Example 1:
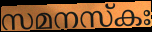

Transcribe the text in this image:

സമനസ്കഃ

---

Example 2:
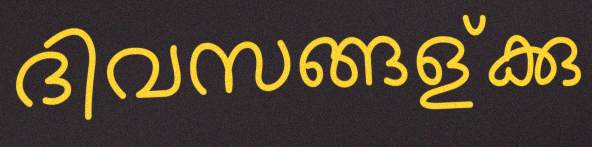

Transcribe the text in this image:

ദിവസങ്ങള്ക്കു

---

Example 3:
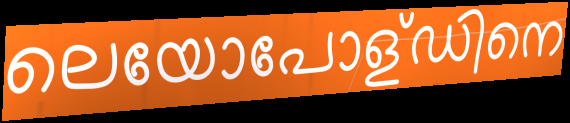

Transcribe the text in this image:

ലെയോപോള്ഡിനെ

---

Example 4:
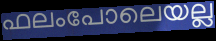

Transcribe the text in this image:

ഫലംപോലെയല്ല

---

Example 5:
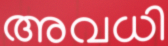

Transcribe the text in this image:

അവധി